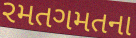
રમતગમતના